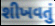
શીખવતું